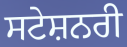
ਸਟੇਸ਼ਨਰੀ